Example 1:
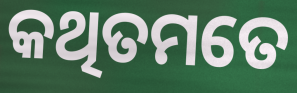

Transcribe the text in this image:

କଥିତମତେ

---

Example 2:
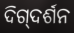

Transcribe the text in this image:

ଦିଗ୍‌ଦର୍ଶନ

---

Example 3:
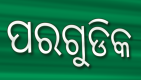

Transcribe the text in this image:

ପରଗୁଡିକ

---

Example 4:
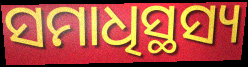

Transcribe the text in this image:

ସମାଧିସ୍ଥସ୍ୟ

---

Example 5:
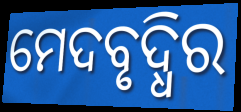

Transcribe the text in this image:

ମେଦବୃଦ୍ଧିର